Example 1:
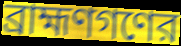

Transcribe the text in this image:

ব্রাহ্মণগণের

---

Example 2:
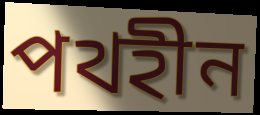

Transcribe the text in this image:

পথহীন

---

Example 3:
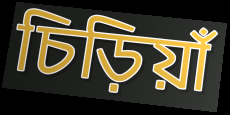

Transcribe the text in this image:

চিড়িয়াঁ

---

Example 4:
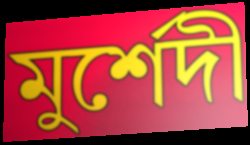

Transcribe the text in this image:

মুর্শেদী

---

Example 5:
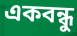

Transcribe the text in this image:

একবন্ধু